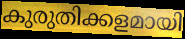
കുരുതിക്കളമായി